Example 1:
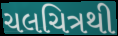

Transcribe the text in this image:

ચલચિત્રથી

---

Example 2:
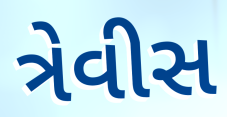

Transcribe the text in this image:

ત્રેવીસ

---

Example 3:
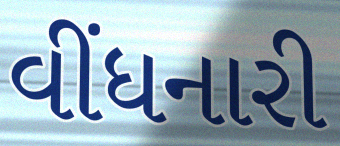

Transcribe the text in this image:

વીંધનારી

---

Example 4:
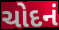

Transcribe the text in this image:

ચોદનં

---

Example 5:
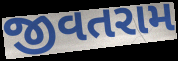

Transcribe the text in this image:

જીવતરામ